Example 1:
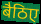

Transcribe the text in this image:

बैठिए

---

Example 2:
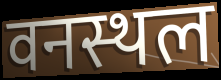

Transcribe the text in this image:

वनस्थल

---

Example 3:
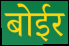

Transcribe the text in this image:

बोईर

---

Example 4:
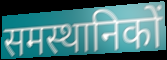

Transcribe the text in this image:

समस्थानिकों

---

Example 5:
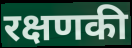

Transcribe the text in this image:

रक्षणकी